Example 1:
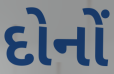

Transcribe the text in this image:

દોનોં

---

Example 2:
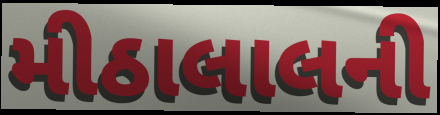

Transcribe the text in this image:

મીઠાલાલની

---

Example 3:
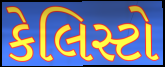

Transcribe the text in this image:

કેલિસ્ટો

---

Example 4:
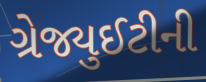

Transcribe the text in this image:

ગ્રેજ્યુઈટીની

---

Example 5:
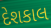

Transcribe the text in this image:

દેશકાલ